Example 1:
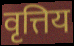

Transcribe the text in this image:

वृत्तिय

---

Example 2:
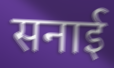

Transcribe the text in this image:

सनाई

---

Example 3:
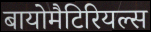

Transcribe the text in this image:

बायोमैटिरियल्स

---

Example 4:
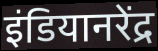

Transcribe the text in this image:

इंडियानरेंद्र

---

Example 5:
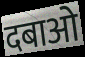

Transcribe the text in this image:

दबाओ